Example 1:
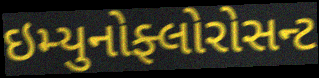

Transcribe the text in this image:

ઇમ્યુનોફ્લોરોસન્ટ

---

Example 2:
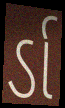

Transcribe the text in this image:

ર્ડા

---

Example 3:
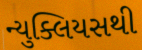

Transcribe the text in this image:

ન્યુક્લિયસથી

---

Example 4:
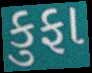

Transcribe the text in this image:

કુફા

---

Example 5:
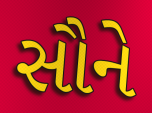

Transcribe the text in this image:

સૌને